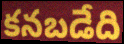
కనబడేది